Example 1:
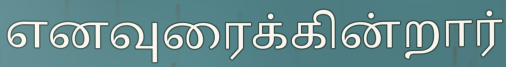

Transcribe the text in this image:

எனவுரைக்கின்றார்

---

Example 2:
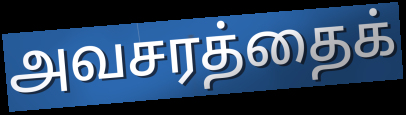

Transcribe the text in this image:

அவசரத்தைக்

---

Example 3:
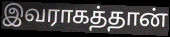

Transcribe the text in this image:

இவராகத்தான்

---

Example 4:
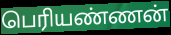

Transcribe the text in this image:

பெரியண்ணன்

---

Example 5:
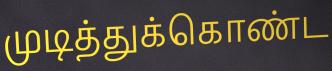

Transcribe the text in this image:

முடித்துக்கொண்ட